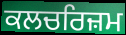
ਕਲਚਰਿਜ਼ਮ